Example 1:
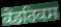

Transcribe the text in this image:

ਕੇਂਡਰਿਕਸ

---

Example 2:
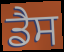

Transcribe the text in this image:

ਡੈਸ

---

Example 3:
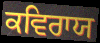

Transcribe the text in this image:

ਕਵਿਰਾਯ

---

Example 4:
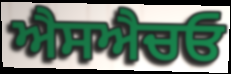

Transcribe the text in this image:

ਐਸਐਚਓ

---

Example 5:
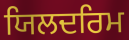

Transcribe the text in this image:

ਯਿਲਦਰਿਮ